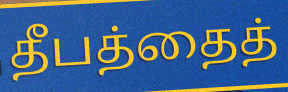
தீபத்தைத்